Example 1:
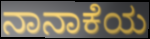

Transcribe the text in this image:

ನಾನಾಕೆಯ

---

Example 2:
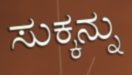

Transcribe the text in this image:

ಸುಕ್ಕನ್ನು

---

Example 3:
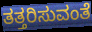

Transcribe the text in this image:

ತತ್ತರಿಸುವಂತೆ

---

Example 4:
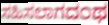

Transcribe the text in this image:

ಸಹಿಸಲಾಗದಂಥ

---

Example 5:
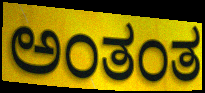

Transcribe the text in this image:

ಅಂತಂತ